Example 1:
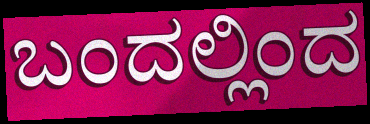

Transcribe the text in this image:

ಬಂದಲ್ಲಿಂದ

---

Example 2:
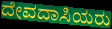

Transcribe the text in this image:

ದೇವದಾಸಿಯರು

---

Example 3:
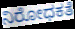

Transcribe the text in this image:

ನಿರೋಧಕತೆ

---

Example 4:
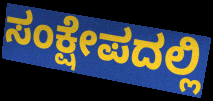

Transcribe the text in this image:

ಸಂಕ್ಷೇಪದಲ್ಲಿ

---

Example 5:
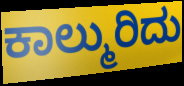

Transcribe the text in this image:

ಕಾಲ್ಮುರಿದು